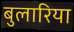
बुलारिया